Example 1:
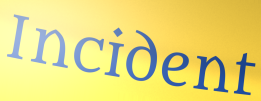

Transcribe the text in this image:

Incident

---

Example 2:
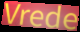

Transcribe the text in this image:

Vrede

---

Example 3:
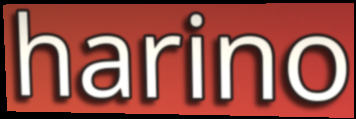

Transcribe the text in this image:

harino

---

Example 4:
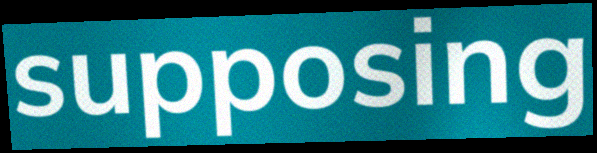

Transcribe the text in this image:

supposing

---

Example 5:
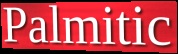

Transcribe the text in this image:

Palmitic